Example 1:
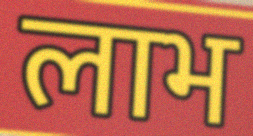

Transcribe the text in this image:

लाभ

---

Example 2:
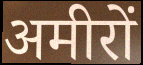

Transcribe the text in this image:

अमीरों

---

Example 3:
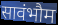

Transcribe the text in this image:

सावंभौम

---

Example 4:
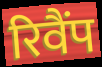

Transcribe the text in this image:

रिवैंप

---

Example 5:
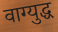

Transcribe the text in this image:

वाग्युद्ध